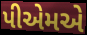
પીએમએ